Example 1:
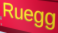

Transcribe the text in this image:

Ruegg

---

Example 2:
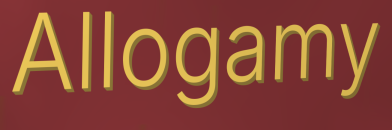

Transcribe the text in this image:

Allogamy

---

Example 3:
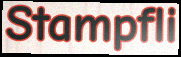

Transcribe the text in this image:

Stampfli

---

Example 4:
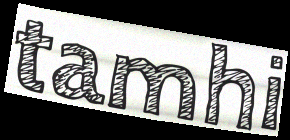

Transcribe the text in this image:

tamhi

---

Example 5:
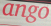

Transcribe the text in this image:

ango